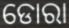
ଡୋରା